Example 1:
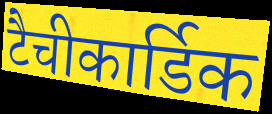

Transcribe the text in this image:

टैचीकार्डिक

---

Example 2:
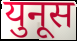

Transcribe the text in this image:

युनूस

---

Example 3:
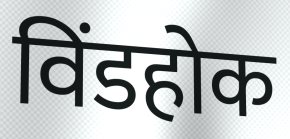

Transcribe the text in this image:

विंडहोक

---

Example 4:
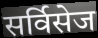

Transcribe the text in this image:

सर्विसेज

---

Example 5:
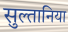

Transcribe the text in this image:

सुल्तानिया